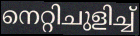
നെറ്റിചുളിച്ച്